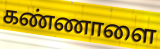
கண்ணாளை